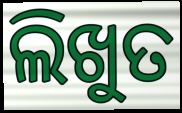
ଲିଖୁତ